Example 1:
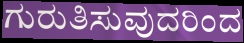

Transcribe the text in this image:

ಗುರುತಿಸುವುದರಿಂದ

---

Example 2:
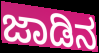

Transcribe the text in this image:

ಜಾಡಿನ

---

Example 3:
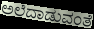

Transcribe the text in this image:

ಅಲೆದಾಡುವಂತೆ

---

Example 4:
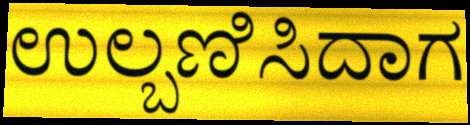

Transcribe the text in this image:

ಉಲ್ಬಣಿಸಿದಾಗ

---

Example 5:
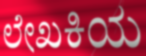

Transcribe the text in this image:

ಲೇಖಕಿಯ